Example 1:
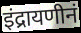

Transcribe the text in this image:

इंद्रायणीनं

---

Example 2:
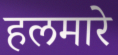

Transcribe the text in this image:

हलमारे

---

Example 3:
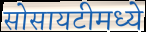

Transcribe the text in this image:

सोसायटीमध्ये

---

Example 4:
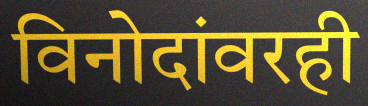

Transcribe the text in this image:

विनोदांवरही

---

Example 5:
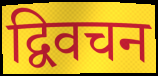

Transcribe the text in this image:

द्विवचन